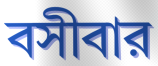
বসীবার